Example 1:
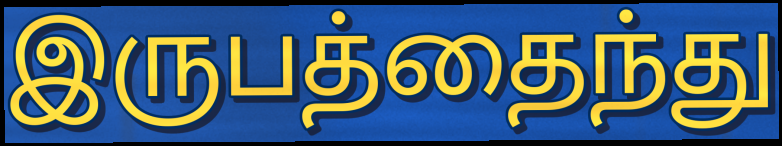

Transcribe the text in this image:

இருபத்தைந்து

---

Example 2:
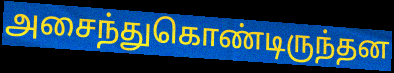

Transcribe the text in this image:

அசைந்துகொண்டிருந்தன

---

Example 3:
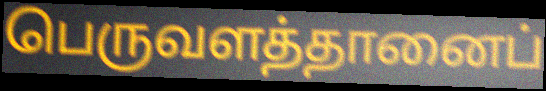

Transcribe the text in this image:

பெருவளத்தானைப்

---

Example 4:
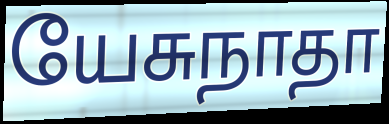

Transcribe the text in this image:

யேசுநாதா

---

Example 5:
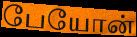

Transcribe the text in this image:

பேயோன்